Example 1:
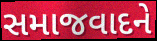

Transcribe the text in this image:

સમાજવાદને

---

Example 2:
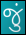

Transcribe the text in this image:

જું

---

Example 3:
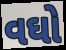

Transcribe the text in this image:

વઘો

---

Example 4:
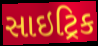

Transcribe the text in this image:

સાઇટ્રિક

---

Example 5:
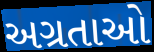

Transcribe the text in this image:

અગ્રતાઓ